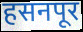
हसनपूर